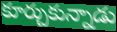
కూర్చుకున్నాడు